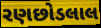
રણછોડલાલ